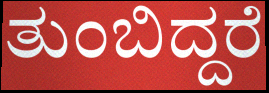
ತುಂಬಿದ್ದರೆ